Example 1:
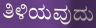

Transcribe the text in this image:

ತಿಳಿಯವುದು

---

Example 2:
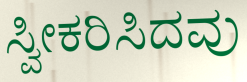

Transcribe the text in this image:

ಸ್ವೀಕರಿಸಿದವು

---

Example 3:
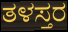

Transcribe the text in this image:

ತಳಸ್ತರ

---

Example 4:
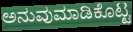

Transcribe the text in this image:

ಅನುವುಮಾಡಿಕೊಟ್ಟ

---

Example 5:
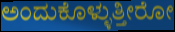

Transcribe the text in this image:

ಅಂದುಕೊಳ್ಳುತ್ತೀರೋ